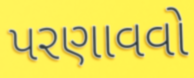
પરણાવવો